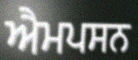
ਐਮਪਸਨ